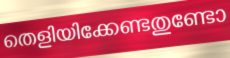
തെളിയിക്കേണ്ടതുണ്ടോ